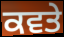
ਕਵਤੇ